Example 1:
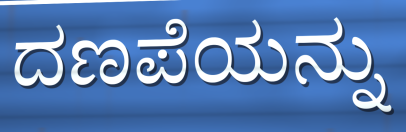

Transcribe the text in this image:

ದಣಪೆಯನ್ನು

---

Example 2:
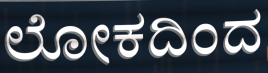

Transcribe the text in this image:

ಲೋಕದಿಂದ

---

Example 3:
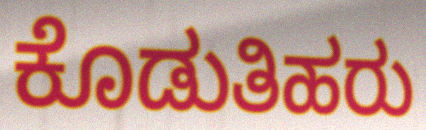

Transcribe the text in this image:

ಕೊಡುತಿಹರು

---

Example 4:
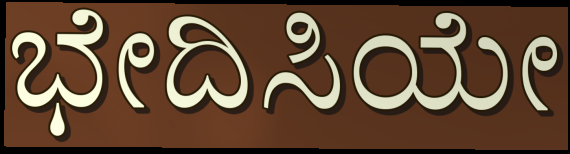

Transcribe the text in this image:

ಭೇದಿಸಿಯೇ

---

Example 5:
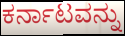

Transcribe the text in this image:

ಕರ್ನಾಟವನ್ನು